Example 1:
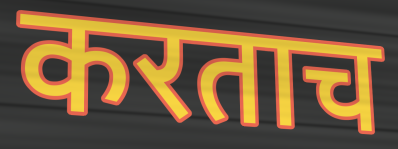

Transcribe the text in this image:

करताच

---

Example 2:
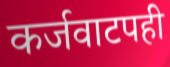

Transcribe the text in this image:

कर्जवाटपही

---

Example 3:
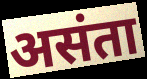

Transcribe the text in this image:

असंता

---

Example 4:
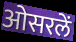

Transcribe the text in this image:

ओसरलें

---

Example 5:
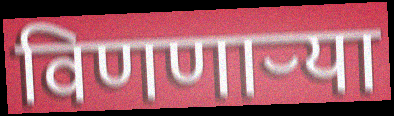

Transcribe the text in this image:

विणणाऱ्या